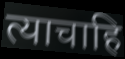
त्याचाहि